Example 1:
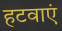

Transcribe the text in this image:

हटवाएं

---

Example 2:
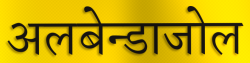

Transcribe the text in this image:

अलबेन्डाजोल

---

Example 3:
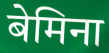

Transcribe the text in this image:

बेमिना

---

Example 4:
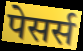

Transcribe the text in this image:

पेसर्स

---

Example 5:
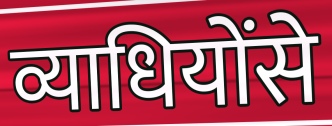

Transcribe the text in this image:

व्याधियोंसे